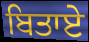
ਬਿਤਾਏ